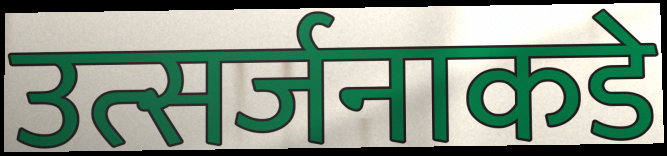
उत्सर्जनाकडे